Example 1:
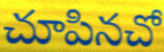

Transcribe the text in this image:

చూపినచో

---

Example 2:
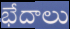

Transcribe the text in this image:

భేదాలు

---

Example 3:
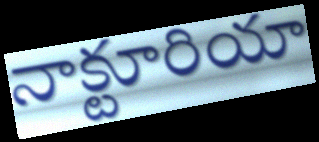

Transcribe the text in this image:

నాక్టూరియా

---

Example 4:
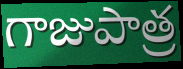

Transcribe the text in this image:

గాజుపాత్ర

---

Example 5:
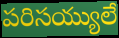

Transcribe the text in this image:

పరిసయ్యులే